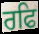
ਰਫਿ